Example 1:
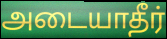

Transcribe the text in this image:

அடையாதீர்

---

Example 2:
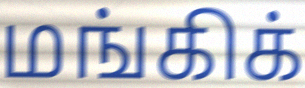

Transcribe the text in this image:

மங்கிக்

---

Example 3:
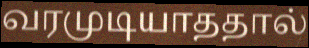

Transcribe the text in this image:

வரமுடியாததால்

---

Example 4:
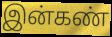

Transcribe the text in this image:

இன்கண்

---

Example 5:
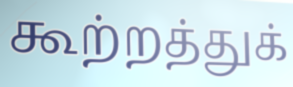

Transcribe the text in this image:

கூற்றத்துக்